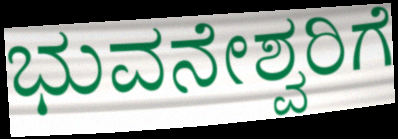
ಭುವನೇಶ್ವರಿಗೆ